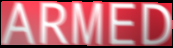
ARMED